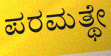
ಪರಮತ್ಥೇ